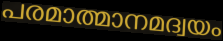
പരമാത്മാനമദ്വയം